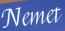
Nemet